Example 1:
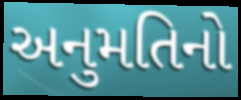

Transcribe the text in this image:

અનુમતિનો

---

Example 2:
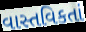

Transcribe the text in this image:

વાસ્તવિકતાં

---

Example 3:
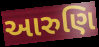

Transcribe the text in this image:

આરુણિ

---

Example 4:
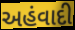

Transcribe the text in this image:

અહંવાદી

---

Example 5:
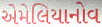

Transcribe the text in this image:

એમેલિયાનોવ